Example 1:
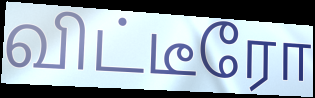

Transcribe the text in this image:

விட்டீரோ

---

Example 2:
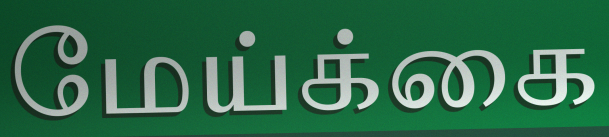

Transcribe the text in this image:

மேய்க்கை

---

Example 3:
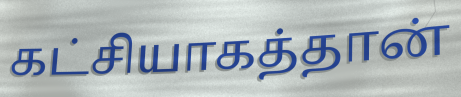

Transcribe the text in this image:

கட்சியாகத்தான்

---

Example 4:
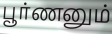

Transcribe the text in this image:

பூர்ணனும்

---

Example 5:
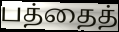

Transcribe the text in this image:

பத்தைத்